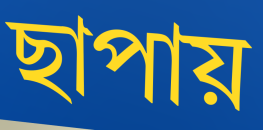
ছাপায়